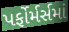
પર્ફોર્મર્સમાં